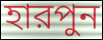
হারপুন